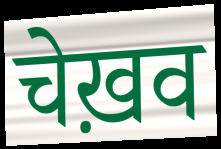
चेख़व